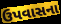
ઉપવાસના